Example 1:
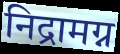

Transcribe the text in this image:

निद्रामग्न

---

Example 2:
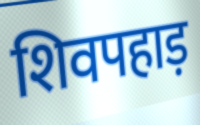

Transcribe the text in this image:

शिवपहाड़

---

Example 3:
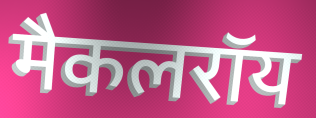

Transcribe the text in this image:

मैकलरॉय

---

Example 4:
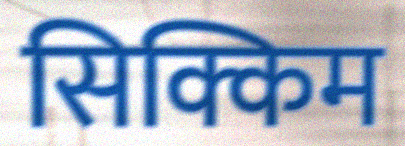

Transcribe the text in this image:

सिक्किम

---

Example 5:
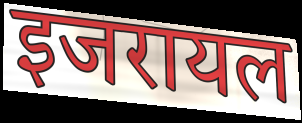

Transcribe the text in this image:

इजरायल